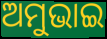
ଅମୁଭାଇ